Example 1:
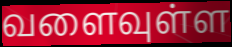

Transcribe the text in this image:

வளைவுள்ள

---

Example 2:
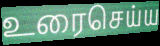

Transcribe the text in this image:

உரைசெய்ய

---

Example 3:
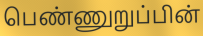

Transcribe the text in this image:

பெண்ணுறுப்பின்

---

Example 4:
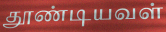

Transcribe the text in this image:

தூண்டியவள்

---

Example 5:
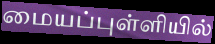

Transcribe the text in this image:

மையப்புள்ளியில்